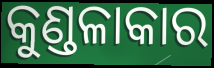
କୁଣ୍ଡଳାକାର